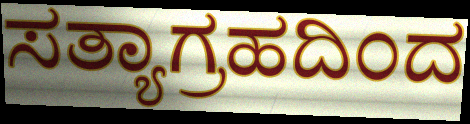
ಸತ್ಯಾಗ್ರಹದಿಂದ